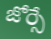
జోర్సే